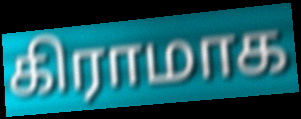
கிராமாக